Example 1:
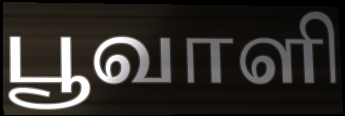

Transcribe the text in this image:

பூவாளி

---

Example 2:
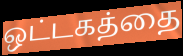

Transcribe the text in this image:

ஒட்டகத்தை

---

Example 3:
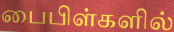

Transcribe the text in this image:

பைபிள்களில்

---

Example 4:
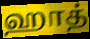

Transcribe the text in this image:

ஹாத்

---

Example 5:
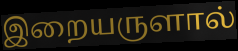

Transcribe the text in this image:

இறையருளால்